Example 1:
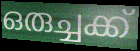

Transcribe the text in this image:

ഒരുച്ചക്ക്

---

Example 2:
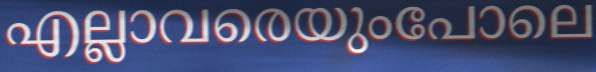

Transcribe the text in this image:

എല്ലാവരെയുംപോലെ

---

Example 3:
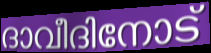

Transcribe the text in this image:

ദാവീദിനോട്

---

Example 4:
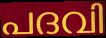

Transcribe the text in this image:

പദവി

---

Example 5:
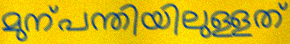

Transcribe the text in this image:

മുന്പന്തിയിലുള്ളത്